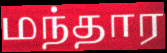
மந்தார